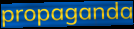
propaganda